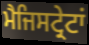
ਮੈਜਿਸਟ੍ਰੇਟਾਂ